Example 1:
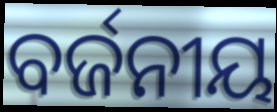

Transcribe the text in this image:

ବର୍ଜନୀୟ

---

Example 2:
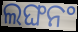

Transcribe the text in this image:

ଲଙ୍ଘନଂ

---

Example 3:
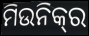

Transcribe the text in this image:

ମିଉନିକ୍‌ର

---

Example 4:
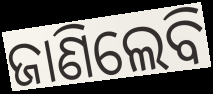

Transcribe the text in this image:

ଜାଣିଲେବି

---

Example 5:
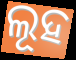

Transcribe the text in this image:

ଲୂହ